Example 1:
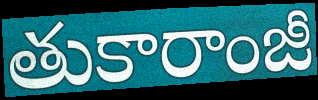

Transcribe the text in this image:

తుకారాంజీ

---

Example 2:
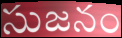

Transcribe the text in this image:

సుజనం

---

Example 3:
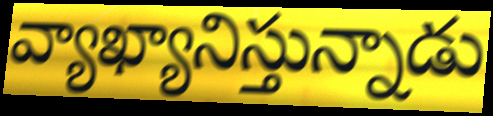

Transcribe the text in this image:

వ్యాఖ్యానిస్తున్నాడు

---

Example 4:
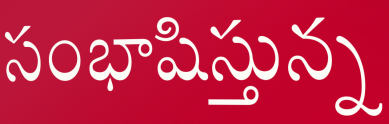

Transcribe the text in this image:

సంభాషిస్తున్న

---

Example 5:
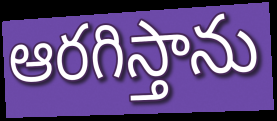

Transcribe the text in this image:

ఆరగిస్తాను